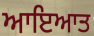
ਆਇਆਤ